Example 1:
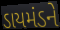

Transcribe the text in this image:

ડાયમંડને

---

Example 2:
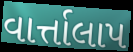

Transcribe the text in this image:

વાર્ત્તાલાપ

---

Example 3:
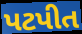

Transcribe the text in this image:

પટપીત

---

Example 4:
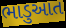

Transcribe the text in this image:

ભાડુઆત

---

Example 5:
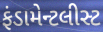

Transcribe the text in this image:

ફંડામેન્ટલીસ્ટ